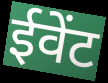
ईवेंट